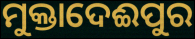
ମୁକ୍ତାଦେଈପୁର